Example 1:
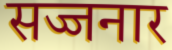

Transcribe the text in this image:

सज्जनार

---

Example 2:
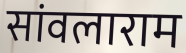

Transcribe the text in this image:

सांवलाराम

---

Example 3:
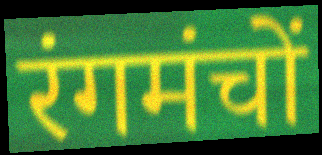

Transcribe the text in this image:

रंगमंचों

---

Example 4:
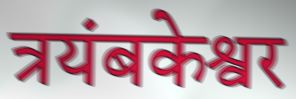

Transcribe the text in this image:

त्रयंबकेश्वर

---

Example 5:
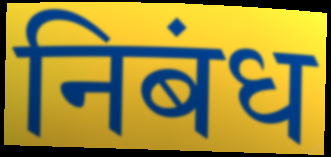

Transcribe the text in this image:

निबंध